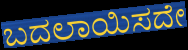
ಬದಲಾಯಿಸದೇ